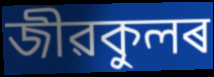
জীৱকুলৰ